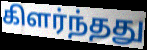
கிளர்ந்தது